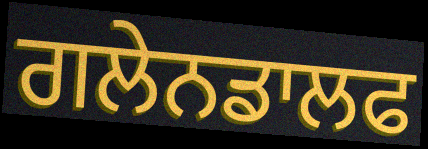
ਗਲੇਨਡਾਲਫ